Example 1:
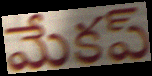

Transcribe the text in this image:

మేకప్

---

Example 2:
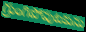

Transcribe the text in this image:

గ్రుంగిపోవుటకును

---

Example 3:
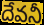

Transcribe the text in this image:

దేవనీ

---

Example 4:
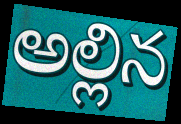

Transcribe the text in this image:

అల్లిన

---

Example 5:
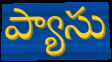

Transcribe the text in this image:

ప్యాసు